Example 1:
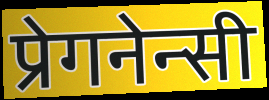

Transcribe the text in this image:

प्रेगनेन्सी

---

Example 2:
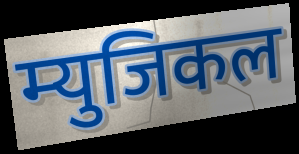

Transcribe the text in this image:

म्युजिकल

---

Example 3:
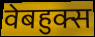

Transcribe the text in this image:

वेबहुक्स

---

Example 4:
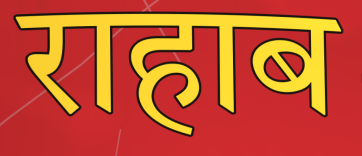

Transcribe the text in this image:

राहाब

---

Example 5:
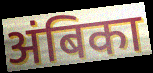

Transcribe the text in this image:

अंबिका